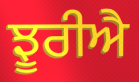
ਝੂਰੀਐ